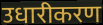
उधारीकरण